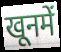
खूनमें